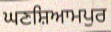
ਘਣਸ਼ਿਆਮਪੁਰ